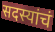
सदस्यांचं